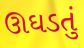
ઊઘડતું